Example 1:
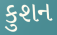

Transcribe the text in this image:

કુશન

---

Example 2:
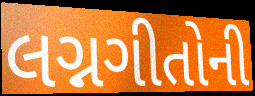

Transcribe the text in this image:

લગ્નગીતોની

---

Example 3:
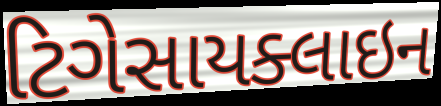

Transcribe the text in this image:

ટિગેસાયક્લાઇન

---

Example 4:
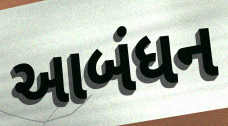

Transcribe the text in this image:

આબંધન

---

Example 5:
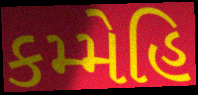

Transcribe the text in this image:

કમ્મેહિ